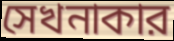
সেখনাকার